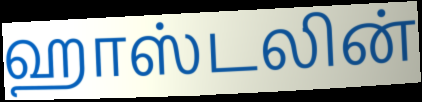
ஹாஸ்டலின்